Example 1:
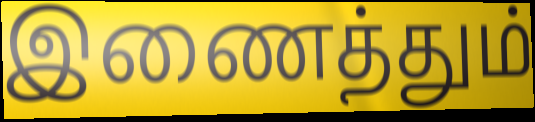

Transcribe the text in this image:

இணைத்தும்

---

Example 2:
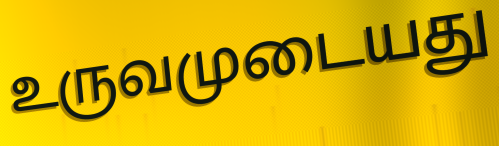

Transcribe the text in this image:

உருவமுடையது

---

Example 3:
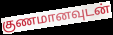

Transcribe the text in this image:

குணமானவுடன்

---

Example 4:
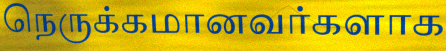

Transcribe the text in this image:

நெருக்கமானவர்களாக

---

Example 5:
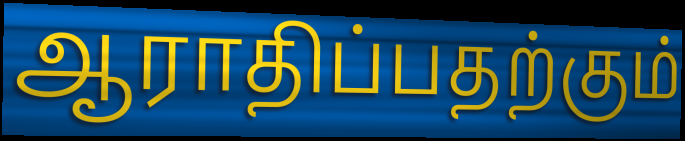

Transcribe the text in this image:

ஆராதிப்பதற்கும்